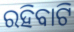
ରହିବାଟି